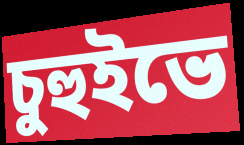
চুহুইভে